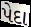
પેદા